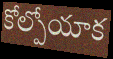
కోల్పోయాక